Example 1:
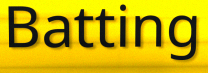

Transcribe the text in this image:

Batting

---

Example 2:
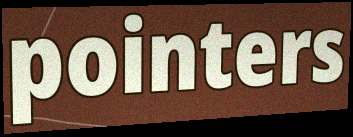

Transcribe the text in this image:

pointers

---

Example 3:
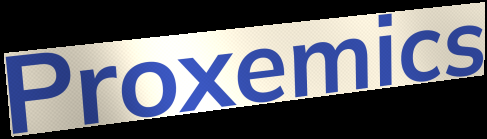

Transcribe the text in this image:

Proxemics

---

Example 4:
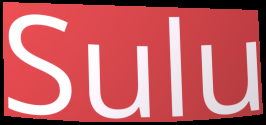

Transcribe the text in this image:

Sulu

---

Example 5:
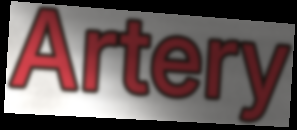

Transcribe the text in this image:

Artery